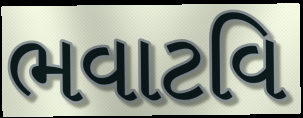
ભવાટવિ